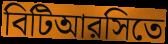
বিটিআরসিতে